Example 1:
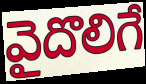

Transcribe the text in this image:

వైదొలిగే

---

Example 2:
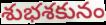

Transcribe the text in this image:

శుభశకునం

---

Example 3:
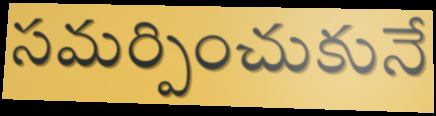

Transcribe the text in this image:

సమర్పించుకునే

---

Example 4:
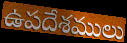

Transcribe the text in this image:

ఉపదేశములు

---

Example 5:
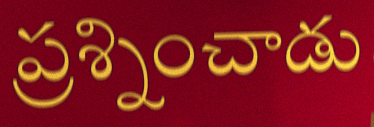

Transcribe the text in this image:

ప్రశ్నించాడు